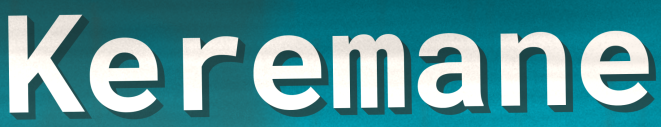
Keremane